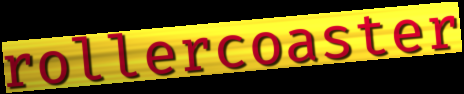
rollercoaster